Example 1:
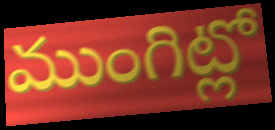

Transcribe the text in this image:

ముంగిట్లో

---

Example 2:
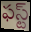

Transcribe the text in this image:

ఫస్ట్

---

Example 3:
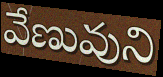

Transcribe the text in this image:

వేణువుని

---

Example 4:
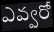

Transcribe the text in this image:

ఎవ్వరో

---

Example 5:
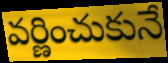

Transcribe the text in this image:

వర్ణించుకునే